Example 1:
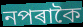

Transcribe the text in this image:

নপৰাকৈ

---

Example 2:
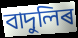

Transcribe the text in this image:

বাদুলিৰ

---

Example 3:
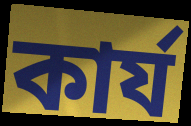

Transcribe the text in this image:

কাৰ্য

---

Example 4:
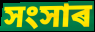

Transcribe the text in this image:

সংসাৰ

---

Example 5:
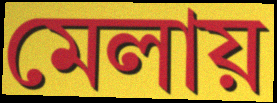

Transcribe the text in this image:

মেলায়